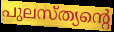
പുലസ്ത്യന്റെ